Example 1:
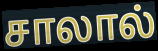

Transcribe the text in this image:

சாலால்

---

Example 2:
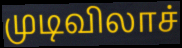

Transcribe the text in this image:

முடிவிலாச்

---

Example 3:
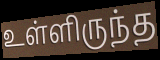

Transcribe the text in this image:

உள்ளிருந்த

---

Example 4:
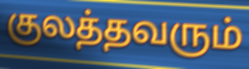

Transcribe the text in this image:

குலத்தவரும்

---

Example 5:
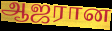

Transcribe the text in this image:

ஆஜரான